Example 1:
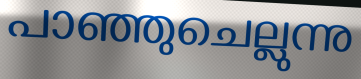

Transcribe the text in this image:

പാഞ്ഞുചെല്ലുന്നു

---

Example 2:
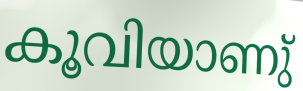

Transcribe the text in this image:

കൂവിയാണു്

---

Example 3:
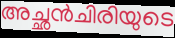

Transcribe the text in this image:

അച്ഛൻചിരിയുടെ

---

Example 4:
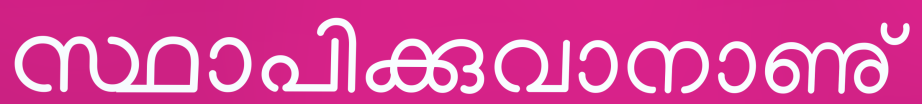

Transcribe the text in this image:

സ്ഥാപിക്കുവാനാണു്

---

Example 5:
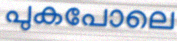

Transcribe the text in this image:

പുകപോലെ